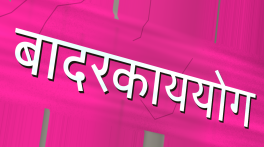
बादरकाययोग